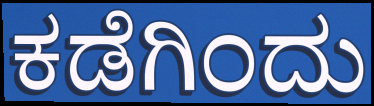
ಕಡೆಗಿಂದು